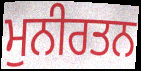
ਮੁਨੀਰਤਨ